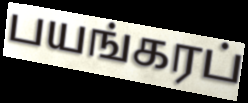
பயங்கரப்